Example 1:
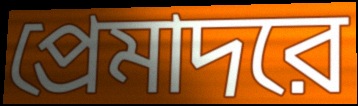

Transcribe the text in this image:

প্রেমাদরে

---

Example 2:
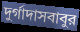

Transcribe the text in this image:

দুর্গাদাসবাবুর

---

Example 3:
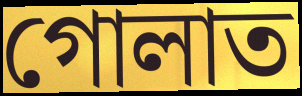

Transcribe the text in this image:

গোলাত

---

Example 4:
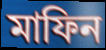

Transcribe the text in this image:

মাফিন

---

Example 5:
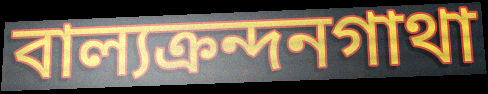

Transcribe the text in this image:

বাল্যক্রন্দনগাথা